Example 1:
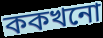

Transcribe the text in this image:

ককখনো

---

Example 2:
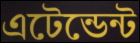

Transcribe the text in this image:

এটেন্ডেন্ট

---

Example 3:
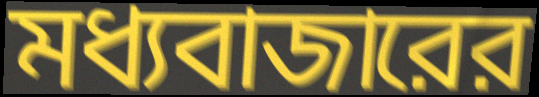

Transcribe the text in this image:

মধ্যবাজারের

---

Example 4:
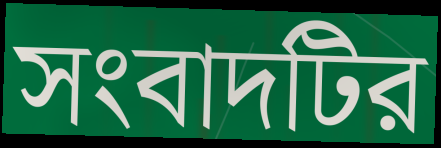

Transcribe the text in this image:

সংবাদটির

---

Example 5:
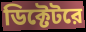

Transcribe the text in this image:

ডিক্টেটরে